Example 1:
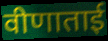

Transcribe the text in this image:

वीणाताई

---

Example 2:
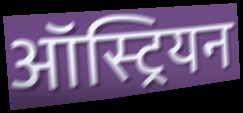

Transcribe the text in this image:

ऑस्ट्रियन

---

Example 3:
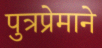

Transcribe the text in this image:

पुत्रप्रेमाने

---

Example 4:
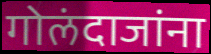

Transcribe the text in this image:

गोलंदाजांना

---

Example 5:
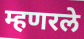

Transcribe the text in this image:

म्हणरले